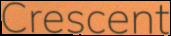
Crescent